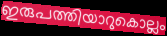
ഇരുപത്തിയാറുകൊല്ലം